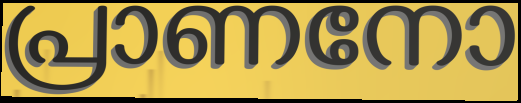
പ്രാണനോ